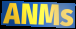
ANMs